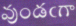
వుండఁగా